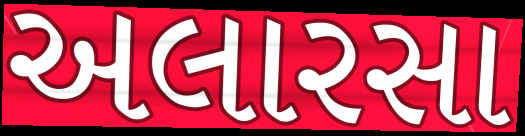
અલારસા